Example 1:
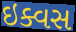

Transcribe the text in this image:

ઇક્વસ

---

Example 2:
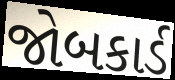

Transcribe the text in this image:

જોબકાર્ડ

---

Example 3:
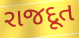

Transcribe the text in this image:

રાજદૂત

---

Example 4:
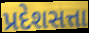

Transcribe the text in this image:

પ્રદેશસત્તા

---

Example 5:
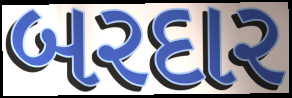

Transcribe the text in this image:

બરદાર